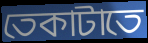
তেকাটাতে